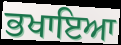
ਭਖਾਇਆ